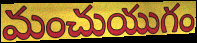
మంచుయుగం